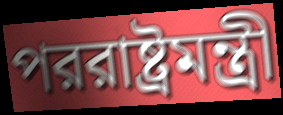
পররাষ্ট্রমন্ত্রী